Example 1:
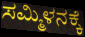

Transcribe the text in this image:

ಸಮ್ಮಿಳನಕ್ಕೆ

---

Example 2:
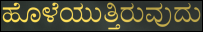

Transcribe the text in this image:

ಹೊಳೆಯುತ್ತಿರುವುದು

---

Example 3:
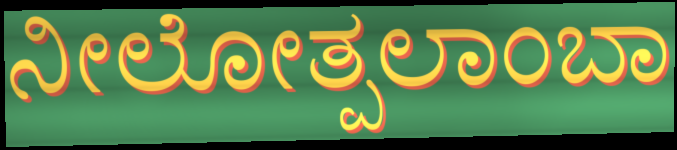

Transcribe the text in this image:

ನೀಲೋತ್ಪಲಾಂಬಾ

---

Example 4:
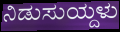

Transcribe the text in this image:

ನಿಡುಸುಯ್ದಳು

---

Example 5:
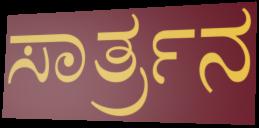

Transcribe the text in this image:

ಸಾರ್ತ್ರನ